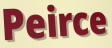
Peirce